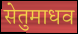
सेतुमाधव